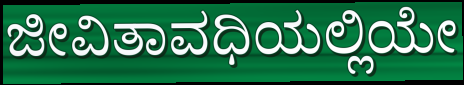
ಜೀವಿತಾವಧಿಯಲ್ಲಿಯೇ